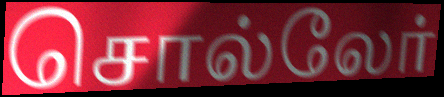
சொல்லேர்